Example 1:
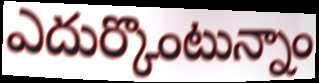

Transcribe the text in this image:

ఎదుర్కొంటున్నాం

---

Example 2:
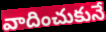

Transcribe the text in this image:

వాదించుకునే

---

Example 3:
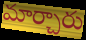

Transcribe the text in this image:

మార్చారు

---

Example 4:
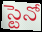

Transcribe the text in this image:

స్టెనో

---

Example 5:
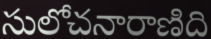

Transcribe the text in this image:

సులోచనారాణిది